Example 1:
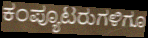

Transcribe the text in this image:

ಕಂಪ್ಯೂಟರುಗಳಿಗೂ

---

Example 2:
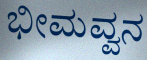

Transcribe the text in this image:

ಭೀಮವ್ವನ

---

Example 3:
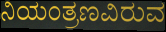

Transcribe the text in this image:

ನಿಯಂತ್ರಣವಿರುವ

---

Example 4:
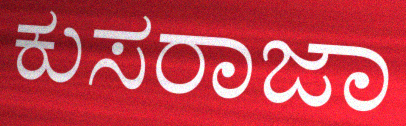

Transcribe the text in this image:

ಕುಸರಾಜಾ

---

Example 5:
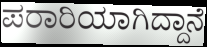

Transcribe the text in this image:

ಪರಾರಿಯಾಗಿದ್ದಾನೆ